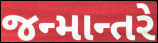
જન્માન્તરે